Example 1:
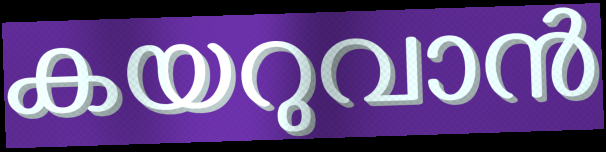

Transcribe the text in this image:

കയറുവാൻ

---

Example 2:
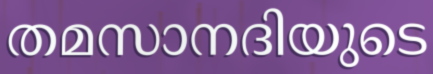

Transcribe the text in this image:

തമസാനദിയുടെ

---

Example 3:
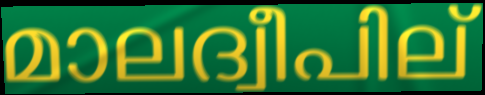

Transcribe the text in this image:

മാലദ്വീപില്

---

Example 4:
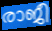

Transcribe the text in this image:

രാജീ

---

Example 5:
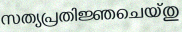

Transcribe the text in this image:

സത്യപ്രതിജ്ഞചെയ്തു